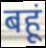
बहूं